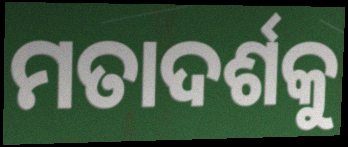
ମତାଦର୍ଶକୁ